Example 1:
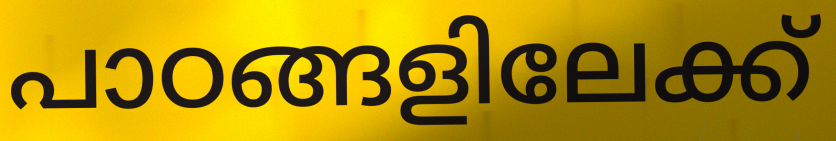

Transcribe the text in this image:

പാഠങ്ങളിലേക്ക്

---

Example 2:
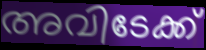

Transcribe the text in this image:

അവിടേക്ക്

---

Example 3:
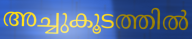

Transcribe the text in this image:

അച്ചുകൂടത്തിൽ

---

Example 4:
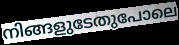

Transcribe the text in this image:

നിങ്ങളുടേതുപോലെ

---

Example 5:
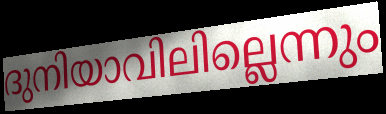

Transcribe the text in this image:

ദുനിയാവിലില്ലെന്നും